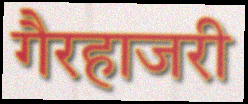
गैरहाजरी